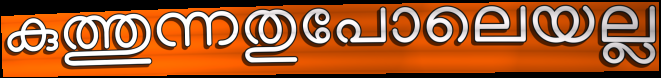
കുത്തുന്നതുപോലെയല്ല